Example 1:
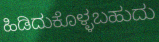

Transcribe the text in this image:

ಹಿಡಿದುಕೊಳ್ಳಬಹುದು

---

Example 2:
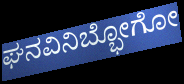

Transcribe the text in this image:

ಘನವಿನಿಬ್ಭೋಗೋ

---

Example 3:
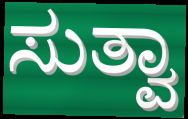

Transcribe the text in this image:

ಸುತ್ವಾ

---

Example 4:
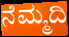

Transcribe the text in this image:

ನೆಮ್ಮದಿ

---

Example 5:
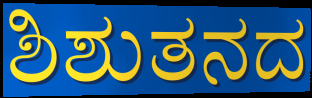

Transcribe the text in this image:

ಶಿಶುತನದ